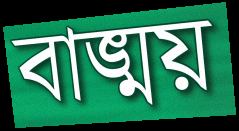
বাঙ্ময়